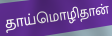
தாய்மொழிதான்